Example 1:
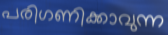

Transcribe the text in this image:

പരിഗണിക്കാവുന്ന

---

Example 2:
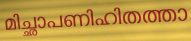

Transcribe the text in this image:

മിച്ഛാപണിഹിതത്താ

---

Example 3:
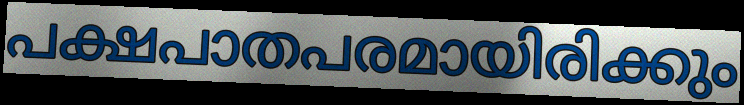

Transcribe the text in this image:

പക്ഷപാതപരമായിരിക്കും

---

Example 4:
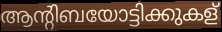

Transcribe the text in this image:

ആന്റിബയോട്ടിക്കുകള്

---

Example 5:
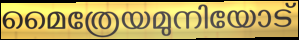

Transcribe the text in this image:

മൈത്രേയമുനിയോട്